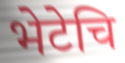
भेटेचि